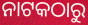
ନାଟକଠାରୁ